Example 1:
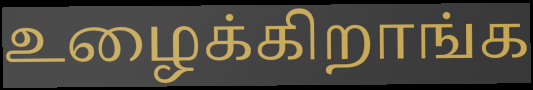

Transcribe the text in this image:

உழைக்கிறாங்க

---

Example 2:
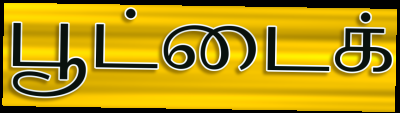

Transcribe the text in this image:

பூட்டைக்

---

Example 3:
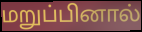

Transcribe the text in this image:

மறுப்பினால்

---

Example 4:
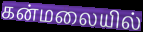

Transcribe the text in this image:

கன்மலையில்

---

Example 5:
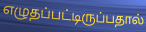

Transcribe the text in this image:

எழுதப்பட்டிருப்பதால்